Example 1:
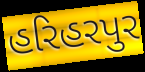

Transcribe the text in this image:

હરિહરપુર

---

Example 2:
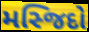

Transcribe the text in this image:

મસ્જિદો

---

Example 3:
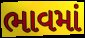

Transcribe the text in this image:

ભાવમાં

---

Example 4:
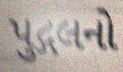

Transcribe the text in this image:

પુદ્ગલનો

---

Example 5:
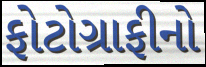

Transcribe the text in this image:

ફોટોગ્રાફીનો